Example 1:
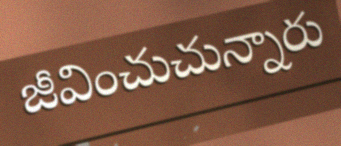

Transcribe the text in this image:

జీవించుచున్నారు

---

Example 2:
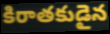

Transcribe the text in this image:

కిరాతకుడైన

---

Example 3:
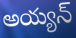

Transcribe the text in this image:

అయ్యన్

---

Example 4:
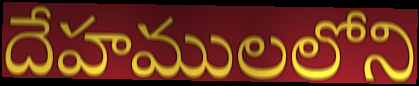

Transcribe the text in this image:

దేహములలోని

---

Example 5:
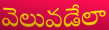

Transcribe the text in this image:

వెలువడేలా